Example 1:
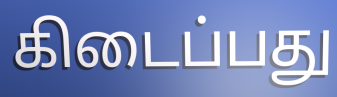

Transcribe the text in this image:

கிடைப்பது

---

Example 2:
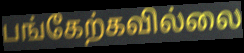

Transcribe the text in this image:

பங்கேற்கவில்லை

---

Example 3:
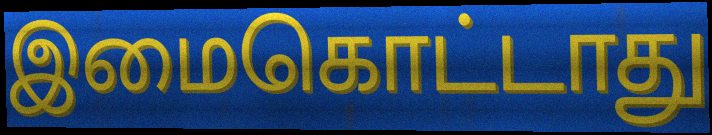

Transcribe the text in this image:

இமைகொட்டாது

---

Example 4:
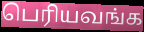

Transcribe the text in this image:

பெரியவங்க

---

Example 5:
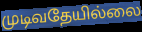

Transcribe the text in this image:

முடிவதேயில்லை